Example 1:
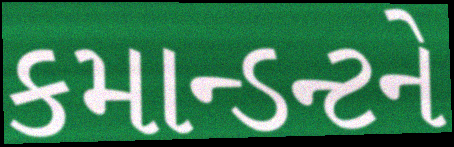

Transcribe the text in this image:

કમાન્ડન્ટને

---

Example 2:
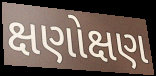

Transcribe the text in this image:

ક્ષણોક્ષણ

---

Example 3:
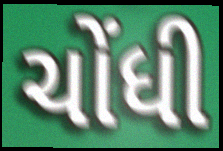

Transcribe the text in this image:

ચોંધી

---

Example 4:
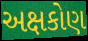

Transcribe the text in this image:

અક્ષકોણ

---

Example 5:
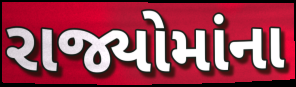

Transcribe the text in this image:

રાજ્યોમાંના